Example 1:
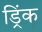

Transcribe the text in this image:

ड्रिंक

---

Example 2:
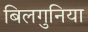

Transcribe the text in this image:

बिलगुनिया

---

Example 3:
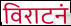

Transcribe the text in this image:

विराटनं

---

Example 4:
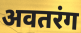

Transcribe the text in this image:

अवतरंग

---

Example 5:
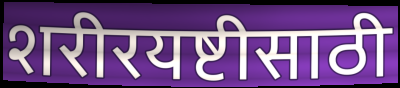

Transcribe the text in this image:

शरीरयष्टीसाठी